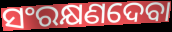
ସଂରକ୍ଷଣଦେବା